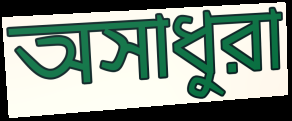
অসাধুরা